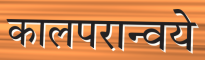
कालपरान्वये